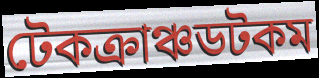
টেকক্রাঞ্চডটকম